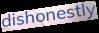
dishonestly